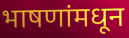
भाषणांमधून